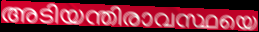
അടിയന്തിരാവസ്ഥയെ